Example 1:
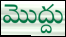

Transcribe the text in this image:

మొద్దు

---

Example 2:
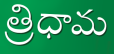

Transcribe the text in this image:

త్రిధామ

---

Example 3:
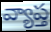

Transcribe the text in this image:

వ్యాప్త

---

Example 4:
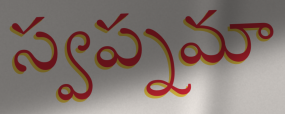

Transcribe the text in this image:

స్వప్నమా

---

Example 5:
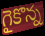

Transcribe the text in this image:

గైకొన్న